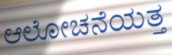
ಆಲೋಚನೆಯತ್ತ